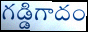
గడ్డిగాదం